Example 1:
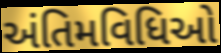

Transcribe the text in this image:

અંતિમવિધિઓ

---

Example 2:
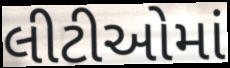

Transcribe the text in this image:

લીટીઓમાં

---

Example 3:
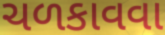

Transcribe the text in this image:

ચળકાવવા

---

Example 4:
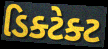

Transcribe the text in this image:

ડિક્ટેક્ટ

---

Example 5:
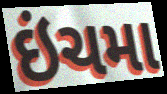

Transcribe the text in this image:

ઇંચમા